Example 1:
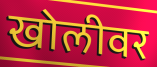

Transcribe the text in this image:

खोलीवर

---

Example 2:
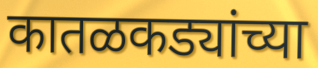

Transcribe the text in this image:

कातळकड्यांच्या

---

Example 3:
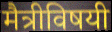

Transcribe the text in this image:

मैत्रीविषयी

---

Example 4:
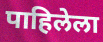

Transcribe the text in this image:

पाहिलेला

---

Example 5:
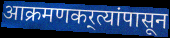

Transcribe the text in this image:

आक्रमणकर्त्यांपासून